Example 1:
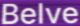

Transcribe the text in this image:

Belve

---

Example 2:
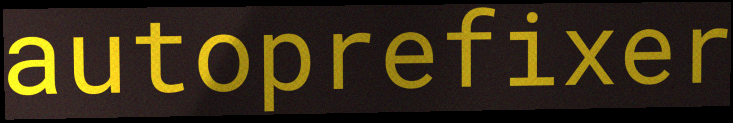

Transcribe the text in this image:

autoprefixer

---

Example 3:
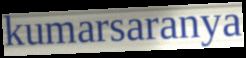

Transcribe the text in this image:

kumarsaranya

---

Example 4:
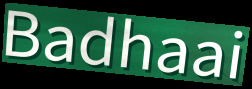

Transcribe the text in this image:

Badhaai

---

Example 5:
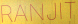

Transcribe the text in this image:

RANJIT